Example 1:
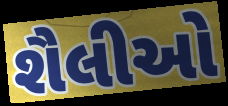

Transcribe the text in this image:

શૈલીઓ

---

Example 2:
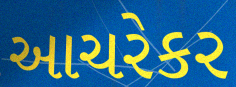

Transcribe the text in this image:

આચરેકર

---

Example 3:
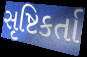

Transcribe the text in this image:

સૃષ્ટિકર્તા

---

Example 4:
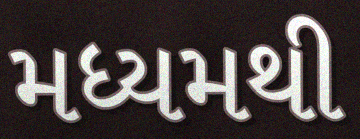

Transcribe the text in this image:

મધ્યમથી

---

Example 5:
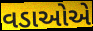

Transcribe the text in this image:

વડાઓએ